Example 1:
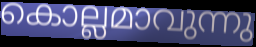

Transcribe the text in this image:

കൊല്ലമാവുന്നു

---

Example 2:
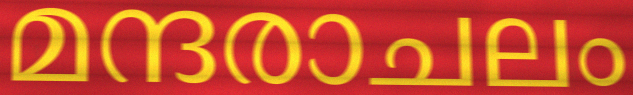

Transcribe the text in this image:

മന്ദരാചലം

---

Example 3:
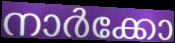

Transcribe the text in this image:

നാർക്കോ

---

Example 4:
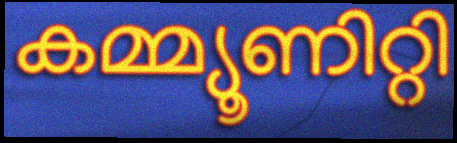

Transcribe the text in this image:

കമ്മ്യൂണിറ്റി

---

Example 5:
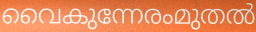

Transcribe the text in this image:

വൈകുന്നേരംമുതൽ